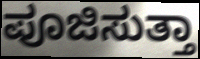
ಪೂಜಿಸುತ್ತಾ